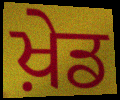
ਖ਼ੇਡ